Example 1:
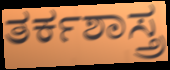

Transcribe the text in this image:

ತರ್ಕಶಾಸ್ತ್ರ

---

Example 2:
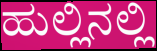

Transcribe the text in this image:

ಹುಲ್ಲಿನಲ್ಲಿ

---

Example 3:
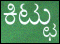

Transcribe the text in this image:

ಕಿಟ್ಟು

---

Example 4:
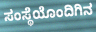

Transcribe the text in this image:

ಸಂಸ್ಥೆಯೊಂದಿಗಿನ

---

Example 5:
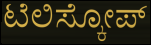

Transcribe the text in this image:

ಟೆಲಿಸ್ಕೋಪ್